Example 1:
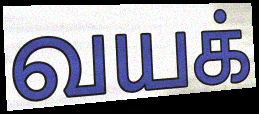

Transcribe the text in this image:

வயக்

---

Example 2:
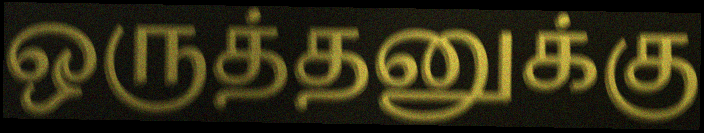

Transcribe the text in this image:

ஒருத்தனுக்கு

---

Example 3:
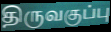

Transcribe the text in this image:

திருவகுப்பு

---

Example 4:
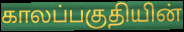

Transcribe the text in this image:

காலப்பகுதியின்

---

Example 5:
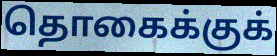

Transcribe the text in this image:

தொகைக்குக்